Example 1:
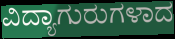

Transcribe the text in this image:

ವಿದ್ಯಾಗುರುಗಳಾದ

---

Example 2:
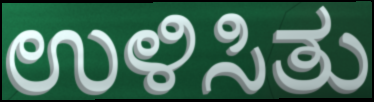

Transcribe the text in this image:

ಉಳಿಸಿತು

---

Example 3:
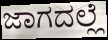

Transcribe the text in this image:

ಜಾಗದಲ್ಲೆ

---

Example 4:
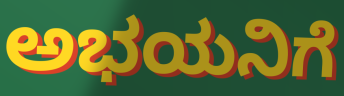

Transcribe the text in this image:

ಅಭಯನಿಗೆ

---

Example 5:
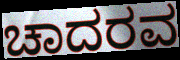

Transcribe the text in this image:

ಚಾದರವ